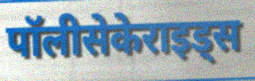
पॉलीसेकेराइड्स